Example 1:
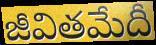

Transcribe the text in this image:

జీవితమేదీ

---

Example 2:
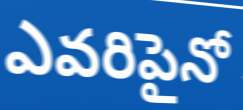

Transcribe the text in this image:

ఎవరిపైనో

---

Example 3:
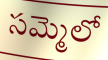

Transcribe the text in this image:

సమ్మెలో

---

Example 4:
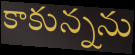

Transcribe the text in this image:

కాకున్నను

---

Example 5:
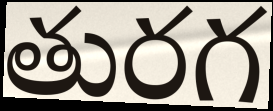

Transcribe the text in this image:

తురగ